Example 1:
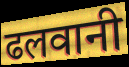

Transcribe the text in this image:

ढलवानी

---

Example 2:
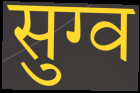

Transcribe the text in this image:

सुग्व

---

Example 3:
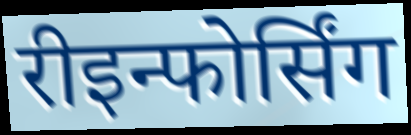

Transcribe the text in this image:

रीइन्फोर्सिंग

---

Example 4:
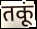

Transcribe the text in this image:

तकूं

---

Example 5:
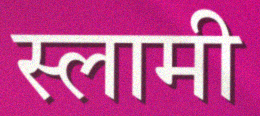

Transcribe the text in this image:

स्लामी